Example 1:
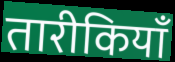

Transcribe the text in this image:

तारीकियाँ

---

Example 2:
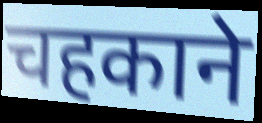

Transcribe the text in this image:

चहकाने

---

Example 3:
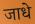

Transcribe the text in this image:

जाधे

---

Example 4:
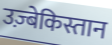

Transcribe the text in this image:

उज़्बेकिस्तान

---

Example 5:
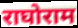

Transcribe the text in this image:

राघोराम